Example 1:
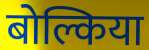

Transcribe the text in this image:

बोल्किया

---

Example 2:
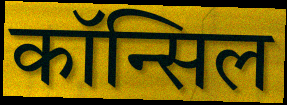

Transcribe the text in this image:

कॉन्सिल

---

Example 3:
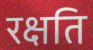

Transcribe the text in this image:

रक्षति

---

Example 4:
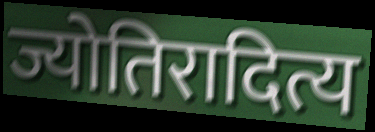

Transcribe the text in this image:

ज्योतिरादित्य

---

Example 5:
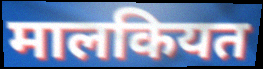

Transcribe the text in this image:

मालकियत